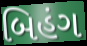
બિહંગ